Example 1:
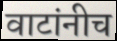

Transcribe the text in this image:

वाटांनीच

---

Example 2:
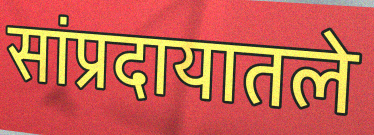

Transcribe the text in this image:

सांप्रदायातले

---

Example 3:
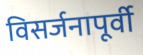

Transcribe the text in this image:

विसर्जनापूर्वी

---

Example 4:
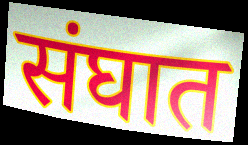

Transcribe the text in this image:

संघात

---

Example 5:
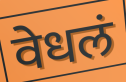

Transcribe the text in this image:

वेधलं